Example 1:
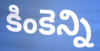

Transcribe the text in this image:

కింకెన్ని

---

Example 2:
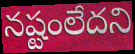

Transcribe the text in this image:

నష్టంలేదని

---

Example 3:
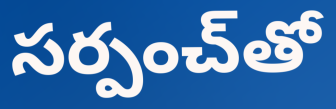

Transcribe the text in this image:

సర్పంచ్‌తో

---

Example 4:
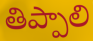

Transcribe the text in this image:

తిప్పాలి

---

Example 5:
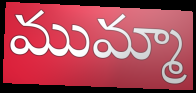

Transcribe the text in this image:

ముమ్మా